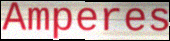
Amperes